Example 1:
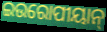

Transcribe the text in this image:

ଇଉରୋପୀୟାନ୍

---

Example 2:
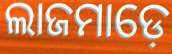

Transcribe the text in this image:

ଲାଜମାଡ଼େ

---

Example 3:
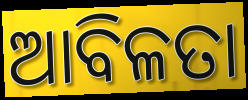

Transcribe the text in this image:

ଆବିଳତା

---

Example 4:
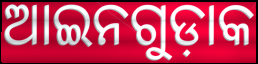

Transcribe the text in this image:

ଆଇନଗୁଡ଼ାକ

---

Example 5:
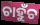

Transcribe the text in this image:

ଚାହୁଁଚ